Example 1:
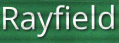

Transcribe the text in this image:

Rayfield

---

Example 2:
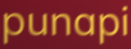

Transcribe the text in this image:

punapi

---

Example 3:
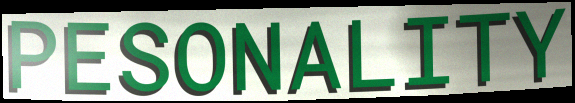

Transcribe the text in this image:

PESONALITY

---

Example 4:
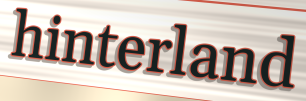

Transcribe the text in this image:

hinterland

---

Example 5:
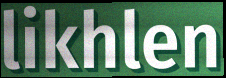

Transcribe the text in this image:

likhlen